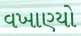
વખાણ્યો